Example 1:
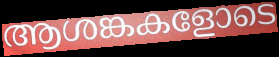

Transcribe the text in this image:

ആശങ്കകളോടെ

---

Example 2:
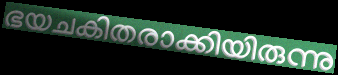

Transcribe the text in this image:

ഭയചകിതരാക്കിയിരുന്നു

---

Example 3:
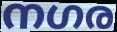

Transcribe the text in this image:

നഗര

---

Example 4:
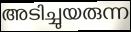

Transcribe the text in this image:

അടിച്ചുയരുന്ന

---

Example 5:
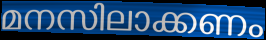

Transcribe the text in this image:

മനസിലാക്കണം